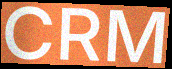
CRM